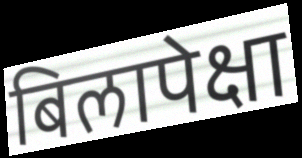
बिलापेक्षा